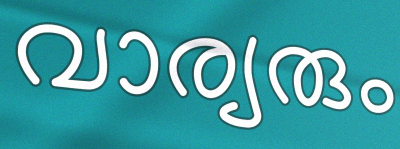
വാര്യരും